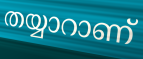
തയ്യാറാണ്